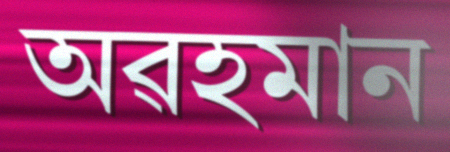
অৱহমান